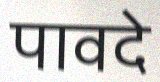
पावदे